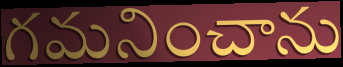
గమనించాను